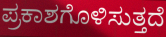
ಪ್ರಕಾಶಗೊಳಿಸುತ್ತದೆ